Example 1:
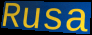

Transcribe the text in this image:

Rusa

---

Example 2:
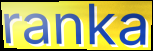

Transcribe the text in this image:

ranka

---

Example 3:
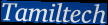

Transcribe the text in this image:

Tamiltech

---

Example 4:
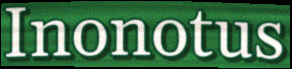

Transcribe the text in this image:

Inonotus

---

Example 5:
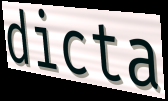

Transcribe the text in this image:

dicta